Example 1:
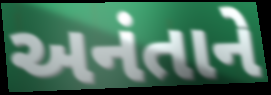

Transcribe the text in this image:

અનંતાને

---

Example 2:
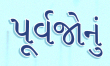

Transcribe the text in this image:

પૂર્વજોનું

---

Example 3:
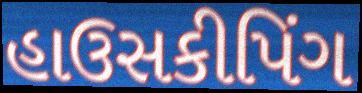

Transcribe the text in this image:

હાઉસકીપિંગ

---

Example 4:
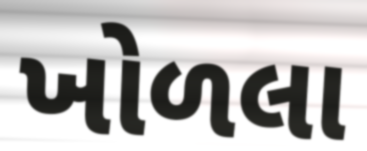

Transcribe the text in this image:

ખોળલા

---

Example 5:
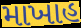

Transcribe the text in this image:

માખાહ